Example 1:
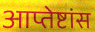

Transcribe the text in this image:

आप्तेष्टांस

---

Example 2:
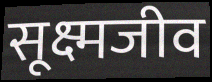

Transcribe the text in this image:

सूक्ष्मजीव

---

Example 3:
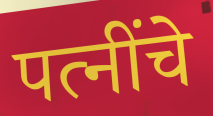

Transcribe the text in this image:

पत्नींचे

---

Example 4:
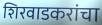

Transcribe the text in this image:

शिरवाडकरांचा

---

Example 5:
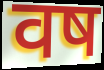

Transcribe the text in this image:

वष